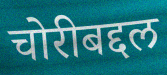
चोरीबद्दल